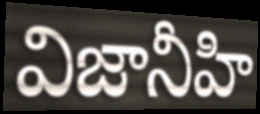
విజానీహి